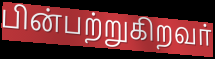
பின்பற்றுகிறவர்